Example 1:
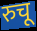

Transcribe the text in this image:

रुचू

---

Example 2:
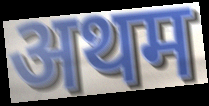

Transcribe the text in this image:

अथम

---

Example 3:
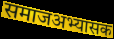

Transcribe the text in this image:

समाजअभ्यासक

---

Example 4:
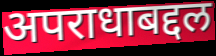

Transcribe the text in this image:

अपराधाबद्दल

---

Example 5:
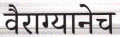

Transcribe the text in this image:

वैराग्यानेच